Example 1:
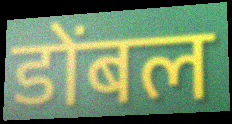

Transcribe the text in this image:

डोंबल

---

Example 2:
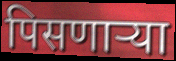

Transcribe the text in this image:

पिसणाऱ्या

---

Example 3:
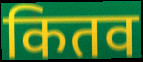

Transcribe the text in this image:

कितव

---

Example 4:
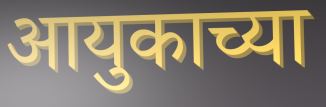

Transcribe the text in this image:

आयुकाच्या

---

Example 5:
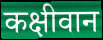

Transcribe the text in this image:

कक्षीवान